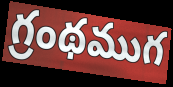
గ్రంథముగ